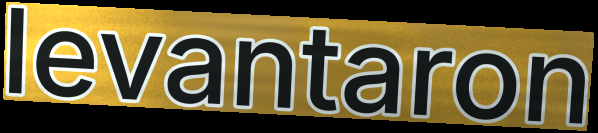
levantaron